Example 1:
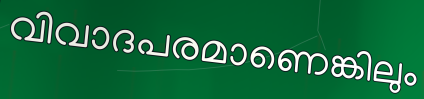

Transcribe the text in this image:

വിവാദപരമാണെങ്കിലും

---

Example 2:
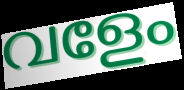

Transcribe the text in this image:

വളേം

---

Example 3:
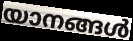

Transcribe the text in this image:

യാനങ്ങൾ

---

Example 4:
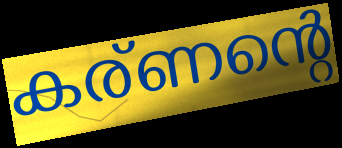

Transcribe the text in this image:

കര്ണന്റെ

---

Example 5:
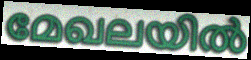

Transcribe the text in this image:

മേഖലയിൽ